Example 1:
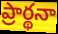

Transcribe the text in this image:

ప్రార్థనా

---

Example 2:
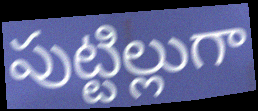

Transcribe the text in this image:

పుట్టిల్లుగా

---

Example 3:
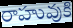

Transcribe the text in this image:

రాహువుకి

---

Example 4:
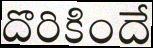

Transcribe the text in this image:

దొరికిందే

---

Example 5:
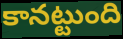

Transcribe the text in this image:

కానట్టుంది